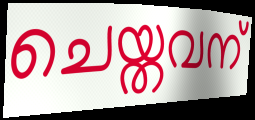
ചെയ്തവന്